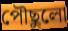
পৌছুলো